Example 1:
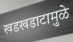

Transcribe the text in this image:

खडखडाटामुळे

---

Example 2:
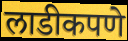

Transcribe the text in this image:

लाडीकपणे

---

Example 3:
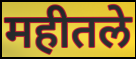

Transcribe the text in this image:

महीतले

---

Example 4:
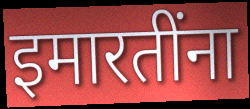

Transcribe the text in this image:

इमारतींना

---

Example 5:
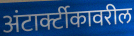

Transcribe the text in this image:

अंटार्क्टीकावरील